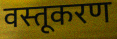
वस्तूकरण